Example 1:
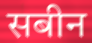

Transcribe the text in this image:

सबीन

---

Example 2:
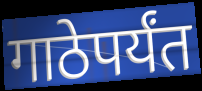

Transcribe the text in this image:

गाठेपर्यंत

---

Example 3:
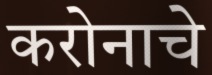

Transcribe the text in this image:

करोनाचे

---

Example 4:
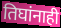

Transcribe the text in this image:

तिघांनाही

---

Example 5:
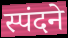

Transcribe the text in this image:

स्पंदने